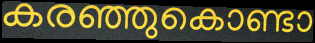
കരഞ്ഞുകൊണ്ടാ